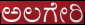
ಅಲಗೇರಿ